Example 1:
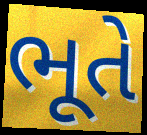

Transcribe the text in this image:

ભૂતે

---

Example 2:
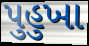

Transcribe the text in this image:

પુહુખા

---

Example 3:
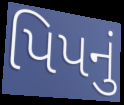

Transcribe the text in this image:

પિપનું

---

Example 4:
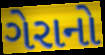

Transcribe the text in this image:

ગેરાનો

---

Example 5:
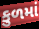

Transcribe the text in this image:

કુળમાં